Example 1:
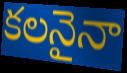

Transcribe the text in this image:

కలనైనా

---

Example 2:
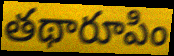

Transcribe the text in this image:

తథారూపిం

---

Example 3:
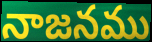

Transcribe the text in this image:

నాజనము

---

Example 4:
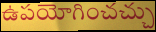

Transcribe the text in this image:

ఉపయోగించచ్చు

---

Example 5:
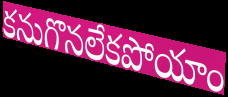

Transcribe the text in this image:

కనుగొనలేకపోయాం